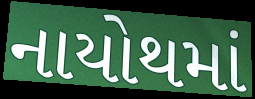
નાયોથમાં